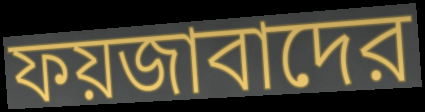
ফয়জাবাদের